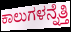
ಕಾಲುಗಳನ್ನೆತ್ತಿ